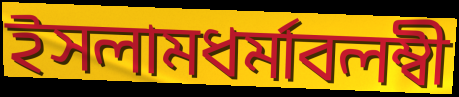
ইসলামধর্মাবলম্বী